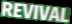
REVIVAL